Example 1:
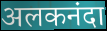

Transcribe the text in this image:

अलकनंदा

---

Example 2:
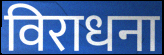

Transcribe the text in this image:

विराधना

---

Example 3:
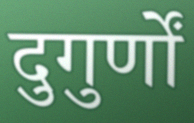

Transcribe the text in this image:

दुगुर्णों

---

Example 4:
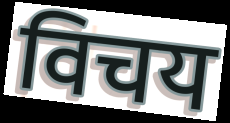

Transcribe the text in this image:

विचय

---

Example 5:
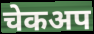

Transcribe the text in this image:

चेकअप